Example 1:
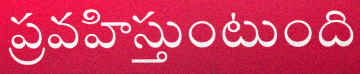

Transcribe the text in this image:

ప్రవహిస్తుంటుంది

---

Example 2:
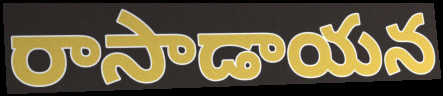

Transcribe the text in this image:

రాసాడాయన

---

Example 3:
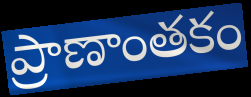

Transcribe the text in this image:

ప్రాణాంతకం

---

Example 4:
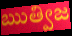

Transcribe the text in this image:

ఋత్విజ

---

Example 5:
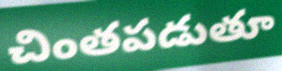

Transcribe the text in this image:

చింతపడుతూ